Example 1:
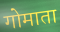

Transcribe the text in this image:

गोमाता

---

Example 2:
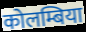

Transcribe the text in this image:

कोलम्बिया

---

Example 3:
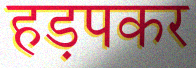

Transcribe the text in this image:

हड़पकर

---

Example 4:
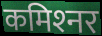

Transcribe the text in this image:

कमिश्‍नर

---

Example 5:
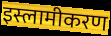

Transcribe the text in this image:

इस्लामीकरण